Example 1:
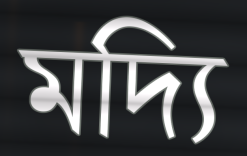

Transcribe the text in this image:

মদ্যি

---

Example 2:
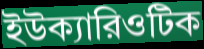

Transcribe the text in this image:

ইউক্যারিওটিক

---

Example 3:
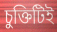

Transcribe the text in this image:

চুক্তিটিই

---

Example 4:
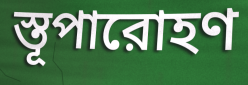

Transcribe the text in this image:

স্তূপারোহণ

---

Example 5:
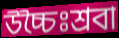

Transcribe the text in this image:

উচ্চৈঃশ্রবা